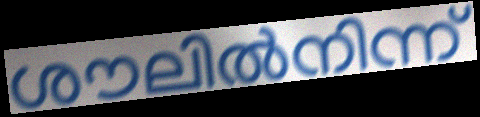
ശൗലിൽനിന്ന്